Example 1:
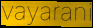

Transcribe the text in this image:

vayarani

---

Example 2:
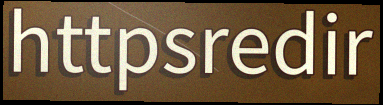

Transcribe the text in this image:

httpsredir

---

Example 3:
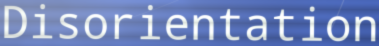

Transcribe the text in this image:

Disorientation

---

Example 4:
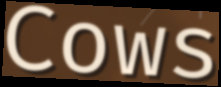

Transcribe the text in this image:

Cows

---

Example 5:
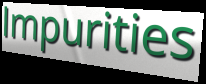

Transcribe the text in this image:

Impurities